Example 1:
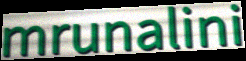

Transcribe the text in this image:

mrunalini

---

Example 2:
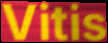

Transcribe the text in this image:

Vitis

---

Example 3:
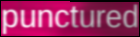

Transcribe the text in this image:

punctured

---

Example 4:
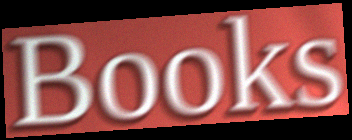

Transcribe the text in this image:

Books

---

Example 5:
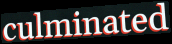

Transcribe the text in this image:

culminated